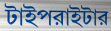
টাইপরাইটার